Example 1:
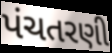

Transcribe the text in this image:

પંચતરણી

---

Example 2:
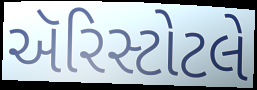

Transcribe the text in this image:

ઍરિસ્ટોટલે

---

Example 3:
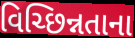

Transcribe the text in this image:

વિચ્છિન્નતાના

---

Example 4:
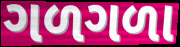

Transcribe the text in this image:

ગળગળા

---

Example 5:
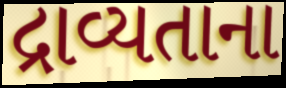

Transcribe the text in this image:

દ્રાવ્યતાના